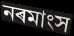
নৰমাংস